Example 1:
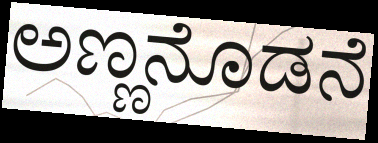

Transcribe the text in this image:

ಅಣ್ಣನೊಡನೆ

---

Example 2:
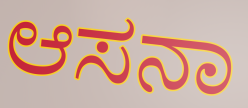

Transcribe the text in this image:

ಆಸನಾ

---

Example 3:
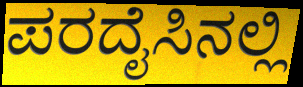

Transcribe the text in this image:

ಪರದೈಸಿನಲ್ಲಿ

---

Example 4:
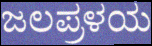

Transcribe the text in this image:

ಜಲಪ್ರಳಯ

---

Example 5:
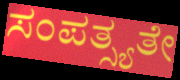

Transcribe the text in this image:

ಸಂಪತ್ಸ್ಯತೇ